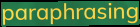
paraphrasing